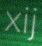
xij